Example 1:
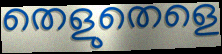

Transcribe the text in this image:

തെളുതെളെ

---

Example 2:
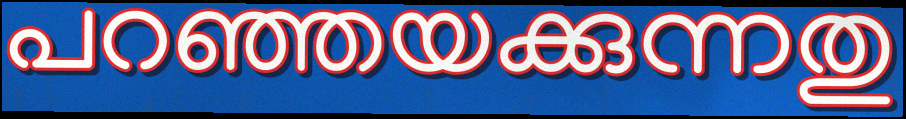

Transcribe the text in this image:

പറഞ്ഞയക്കുന്നതു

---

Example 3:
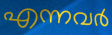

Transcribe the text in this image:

എന്നവർ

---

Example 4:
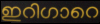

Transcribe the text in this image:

ഇറിഗാറെ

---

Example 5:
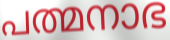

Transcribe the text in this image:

പത്മനാഭ